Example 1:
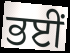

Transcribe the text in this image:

ਭਈਂ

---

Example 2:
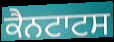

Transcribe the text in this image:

ਕੈਨਟਾਟਸ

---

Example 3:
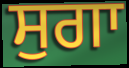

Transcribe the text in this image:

ਸੁਗਾ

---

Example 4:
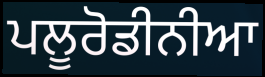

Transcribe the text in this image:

ਪਲੂਰੋਡੀਨੀਆ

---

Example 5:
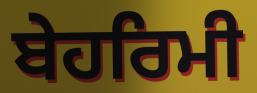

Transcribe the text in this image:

ਬੇਹਰਿਮੀ